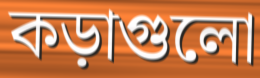
কড়াগুলো